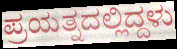
ಪ್ರಯತ್ನದಲ್ಲಿದ್ದಳು